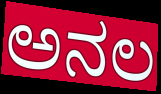
ಅನಲ